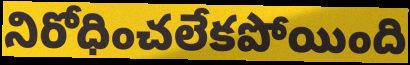
నిరోధించలేకపోయింది